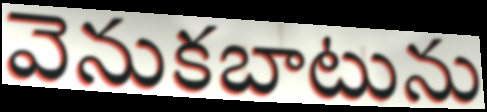
వెనుకబాటును